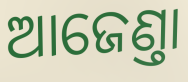
ଆଜେଣ୍ତା